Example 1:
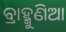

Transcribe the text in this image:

ବ୍ରାହ୍ମୁଣିଆ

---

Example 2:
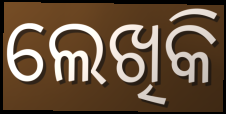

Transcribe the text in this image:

ଲେଖିକି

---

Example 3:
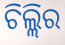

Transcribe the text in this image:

ଚିଲ୍ଲିର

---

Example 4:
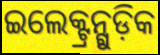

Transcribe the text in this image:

ଇଲେକ୍ଟ୍ରନ୍ଗୁଡ଼ିକ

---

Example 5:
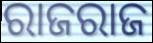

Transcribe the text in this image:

ରାଜରାଜ